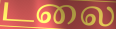
டலை